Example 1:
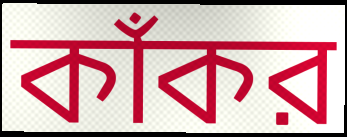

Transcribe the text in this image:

কাঁকর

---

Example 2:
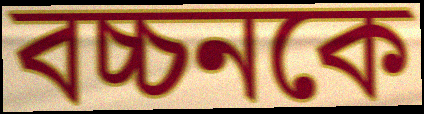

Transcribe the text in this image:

বচ্চনকে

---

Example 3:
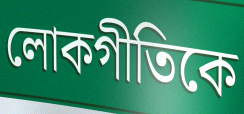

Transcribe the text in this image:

লোকগীতিকে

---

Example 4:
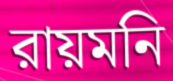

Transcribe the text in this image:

রায়মনি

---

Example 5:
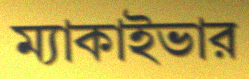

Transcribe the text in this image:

ম্যাকাইভার